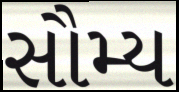
સૌમ્ય